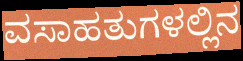
ವಸಾಹತುಗಳಲ್ಲಿನ